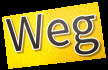
Weg